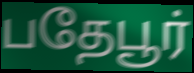
பதேபூர்